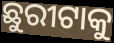
ଛୁରୀଟାକୁ